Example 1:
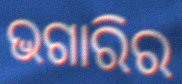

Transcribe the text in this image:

ଭଗାରିର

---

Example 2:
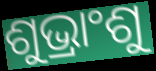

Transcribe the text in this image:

ଶୁଭ୍ରାଂଶୁ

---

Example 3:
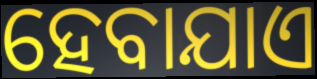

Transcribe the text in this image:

ହେବାଯାଏ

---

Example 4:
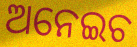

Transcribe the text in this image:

ଅନେଇଚ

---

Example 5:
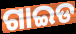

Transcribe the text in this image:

ଗାଇଡ